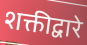
शक्तीद्वारे